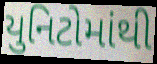
યુનિટોમાંથી